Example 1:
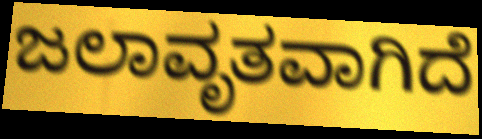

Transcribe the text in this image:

ಜಲಾವೃತವಾಗಿದೆ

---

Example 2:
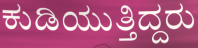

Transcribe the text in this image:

ಕುಡಿಯುತ್ತಿದ್ದರು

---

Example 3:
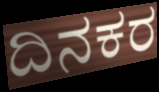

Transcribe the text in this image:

ದಿನಕರ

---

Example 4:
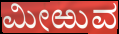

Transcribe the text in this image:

ಮೀಱುವ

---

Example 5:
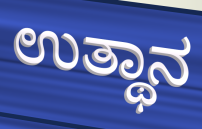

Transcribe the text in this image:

ಉತ್ಥಾನ